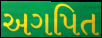
અગપિત